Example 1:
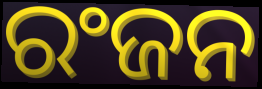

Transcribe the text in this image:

ରଂଜନ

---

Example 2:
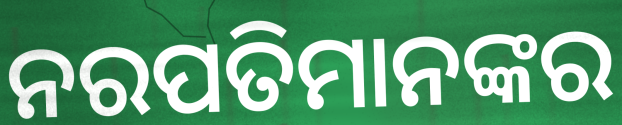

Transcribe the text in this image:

ନରପତିମାନଙ୍କର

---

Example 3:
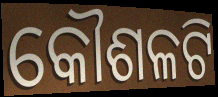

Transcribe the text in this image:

କୌଶଳଟି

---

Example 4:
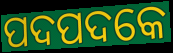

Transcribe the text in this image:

ପଦପଦକେ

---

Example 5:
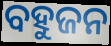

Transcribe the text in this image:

ବହୁଜନ